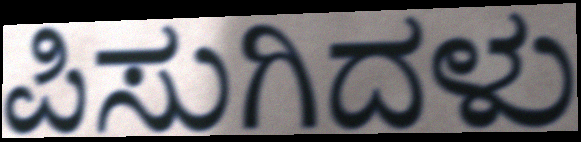
ಪಿಸುಗಿದಳು